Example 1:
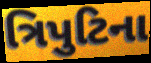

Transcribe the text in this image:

ત્રિપુટિના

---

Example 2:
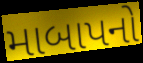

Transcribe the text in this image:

માબાપનો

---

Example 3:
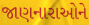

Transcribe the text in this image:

જાણનારાઓને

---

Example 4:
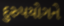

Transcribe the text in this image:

દુરુપયોગને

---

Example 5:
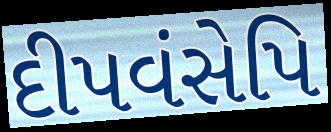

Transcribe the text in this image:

દીપવંસેપિ